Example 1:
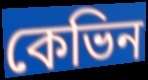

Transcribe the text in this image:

কেভিন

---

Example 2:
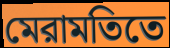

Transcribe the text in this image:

মেরামতিতে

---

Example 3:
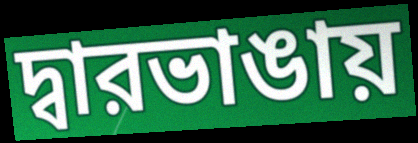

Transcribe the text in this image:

দ্বারভাঙায়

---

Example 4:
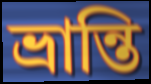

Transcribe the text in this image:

ভ্রান্তি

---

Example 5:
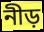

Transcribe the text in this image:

নীড়